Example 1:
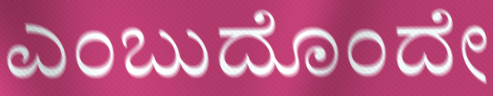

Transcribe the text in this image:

ಎಂಬುದೊಂದೇ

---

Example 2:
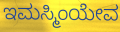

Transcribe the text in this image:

ಇಮಸ್ಮಿಂಯೇವ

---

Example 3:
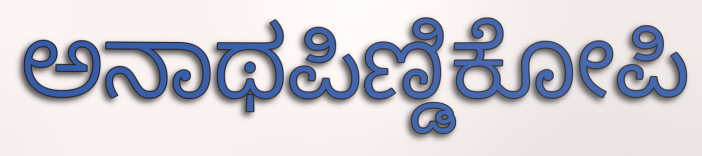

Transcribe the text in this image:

ಅನಾಥಪಿಣ್ಡಿಕೋಪಿ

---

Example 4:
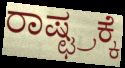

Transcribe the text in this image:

ರಾಷ್ಟ್ರಕ್ಕೆ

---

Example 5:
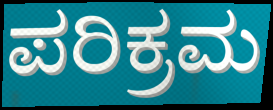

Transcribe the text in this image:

ಪರಿಕ್ರಮ